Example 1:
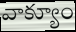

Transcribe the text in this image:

వాక్యూం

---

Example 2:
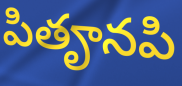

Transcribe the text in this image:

పితౄనపి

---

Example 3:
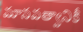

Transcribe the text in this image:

మానవత్వానికీ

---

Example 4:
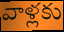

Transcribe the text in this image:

వాళ్లకు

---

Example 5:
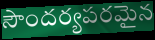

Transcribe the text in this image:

సౌందర్యపరమైన